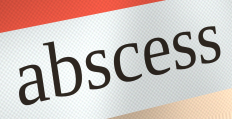
abscess